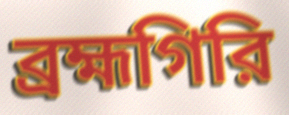
ব্রহ্মগিরি